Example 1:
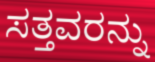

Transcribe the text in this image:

ಸತ್ತವರನ್ನು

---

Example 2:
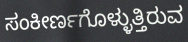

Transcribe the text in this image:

ಸಂಕೀರ್ಣಗೊಳ್ಳುತ್ತಿರುವ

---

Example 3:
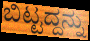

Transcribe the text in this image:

ಬಿಟ್ಟದ್ದನ್ನು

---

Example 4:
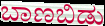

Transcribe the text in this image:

ಬಾಣಬಿಡು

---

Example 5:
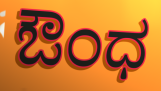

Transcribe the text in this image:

ಔಂಧ